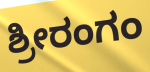
ಶ್ರೀರಂಗಂ